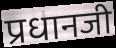
प्रधानजी